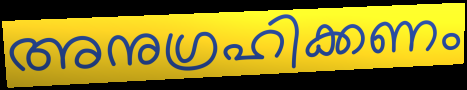
അനുഗ്രഹിക്കണം